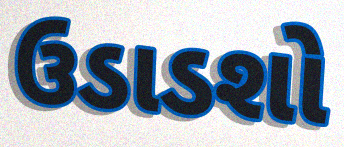
ઉડાડશો